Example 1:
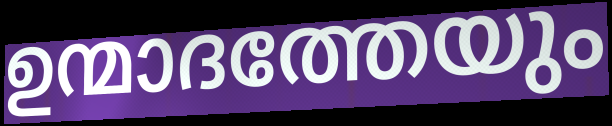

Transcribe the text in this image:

ഉന്മാദത്തേയും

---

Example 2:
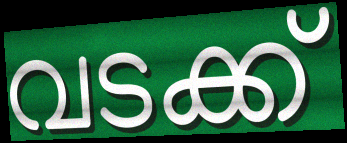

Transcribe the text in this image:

വടക്ക്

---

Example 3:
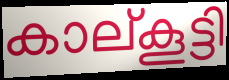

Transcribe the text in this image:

കാല്കൂട്ടി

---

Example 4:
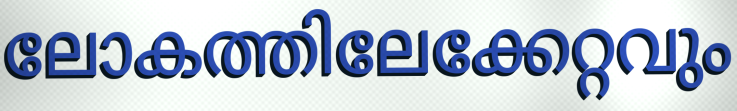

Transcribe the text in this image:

ലോകത്തിലേക്കേറ്റവും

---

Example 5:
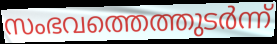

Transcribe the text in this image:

സംഭവത്തെത്തുടർന്ന്